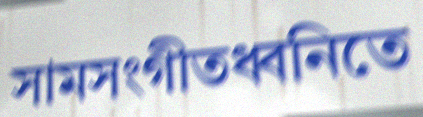
সামসংগীতধ্বনিতে